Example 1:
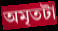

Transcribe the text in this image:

অমৃতটা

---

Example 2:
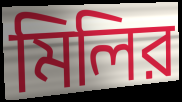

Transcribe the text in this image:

মিলির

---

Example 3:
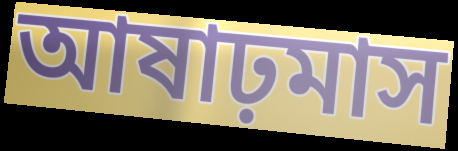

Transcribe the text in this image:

আষাঢ়মাস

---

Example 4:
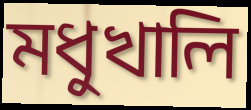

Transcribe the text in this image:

মধুখালি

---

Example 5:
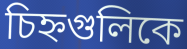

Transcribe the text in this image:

চিহ্নগুলিকে